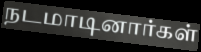
நடமாடினார்கள்